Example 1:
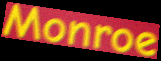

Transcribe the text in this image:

Monroe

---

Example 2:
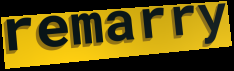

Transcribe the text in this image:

remarry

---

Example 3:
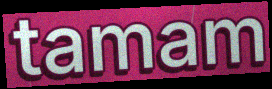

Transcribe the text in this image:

tamam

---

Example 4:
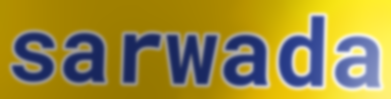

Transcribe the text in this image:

sarwada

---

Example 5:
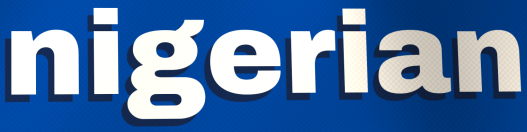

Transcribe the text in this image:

nigerian